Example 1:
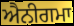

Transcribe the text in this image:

ਐਨੀਗਮਾ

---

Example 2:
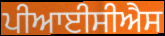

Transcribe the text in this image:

ਪੀਆਈਸੀਐਸ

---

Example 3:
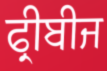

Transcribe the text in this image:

ਫ੍ਰੀਬੀਜ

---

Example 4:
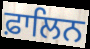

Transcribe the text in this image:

ਫ਼ਾਲਿਨ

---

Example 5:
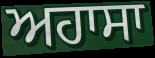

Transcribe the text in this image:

ਅਹਾਸਾ